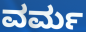
ವರ್ಮ